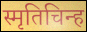
स्मृतिचिन्ह